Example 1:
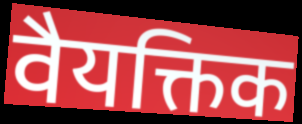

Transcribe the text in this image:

वैयक्तिक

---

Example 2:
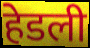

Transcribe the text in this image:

हेडली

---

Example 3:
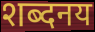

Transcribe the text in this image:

शब्दनय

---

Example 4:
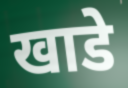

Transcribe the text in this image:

खाडे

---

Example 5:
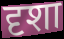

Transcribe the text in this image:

दृशा